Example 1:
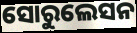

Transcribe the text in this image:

ସୋରୁଲେସନ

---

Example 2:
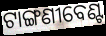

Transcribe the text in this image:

ଟାଙ୍ଗଣୀବେଣ୍ଟ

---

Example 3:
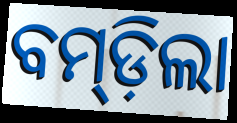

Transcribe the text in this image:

ବମ୍‍ଡ଼ିଲା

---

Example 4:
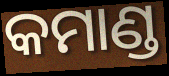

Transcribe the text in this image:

କମାଣ୍ଡ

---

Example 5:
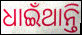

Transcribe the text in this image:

ଧାଇଁଥାନ୍ତି